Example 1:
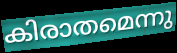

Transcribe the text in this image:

കിരാതമെന്നു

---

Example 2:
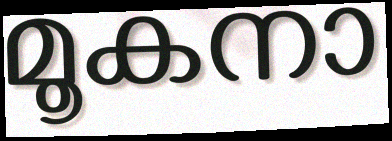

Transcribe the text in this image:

മൂകനാ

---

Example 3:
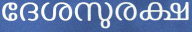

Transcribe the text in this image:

ദേശസുരക്ഷ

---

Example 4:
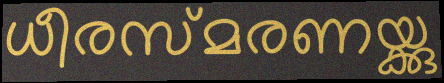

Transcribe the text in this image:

ധീരസ്മരണയ്ക്കു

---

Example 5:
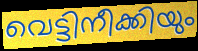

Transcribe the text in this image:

വെട്ടിനീക്കിയും